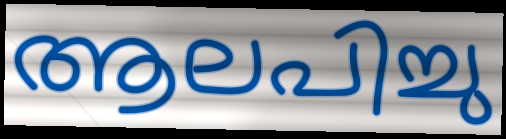
ആലപിച്ചു